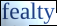
fealty